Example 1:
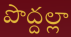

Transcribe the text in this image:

పొద్దల్లా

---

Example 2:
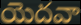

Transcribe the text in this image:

యెదవా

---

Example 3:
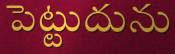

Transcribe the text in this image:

పెట్టుదును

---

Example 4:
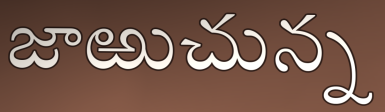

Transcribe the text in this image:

జాఱుచున్న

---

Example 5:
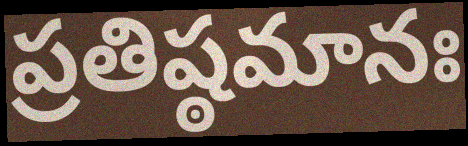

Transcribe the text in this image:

ప్రతిష్ఠమానః